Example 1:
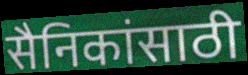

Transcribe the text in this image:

सैनिकांसाठी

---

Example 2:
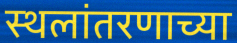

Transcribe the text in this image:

स्थलांतरणाच्या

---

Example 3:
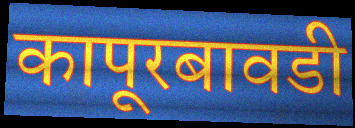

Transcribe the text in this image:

कापूरबावडी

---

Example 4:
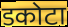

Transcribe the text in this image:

डकोटा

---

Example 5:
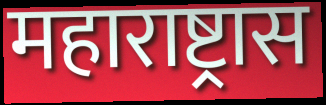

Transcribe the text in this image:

महाराष्ट्रास